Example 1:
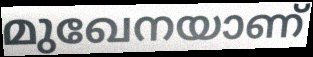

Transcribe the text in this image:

മുഖേനയാണ്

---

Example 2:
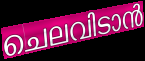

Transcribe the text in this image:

ചെലവിടാൻ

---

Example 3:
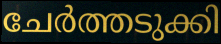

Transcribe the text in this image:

ചേർത്തടുക്കി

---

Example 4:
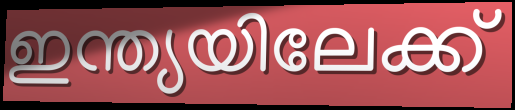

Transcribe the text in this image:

ഇന്ത്യയിലേക്ക്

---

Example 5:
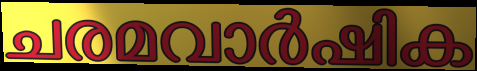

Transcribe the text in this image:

ചരമവാർഷിക